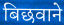
बिछवाने